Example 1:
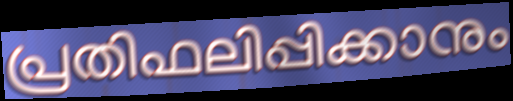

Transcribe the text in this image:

പ്രതിഫലിപ്പിക്കാനും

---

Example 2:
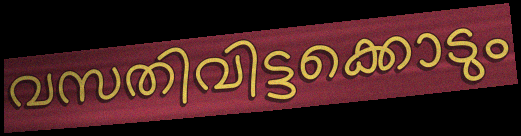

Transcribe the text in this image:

വസതിവിട്ടക്കൊടും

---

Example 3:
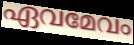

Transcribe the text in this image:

ഏവമേവം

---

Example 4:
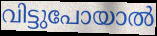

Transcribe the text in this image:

വിട്ടുപോയാൽ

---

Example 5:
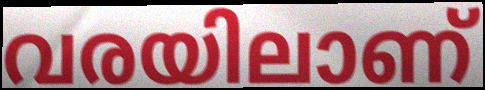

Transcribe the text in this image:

വരയിലാണ്